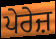
ਪੇਰੇਜ਼